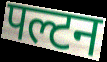
पल्टन